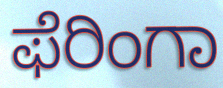
ಫೆರಿಂಗಾ